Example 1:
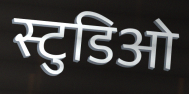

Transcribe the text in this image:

स्टुडिओ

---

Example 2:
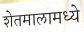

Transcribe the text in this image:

शेतमालामध्ये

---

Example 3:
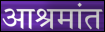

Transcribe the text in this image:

आश्रमांत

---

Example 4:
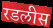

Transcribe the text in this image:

रडलीस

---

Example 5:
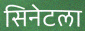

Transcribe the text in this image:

सिनेटला